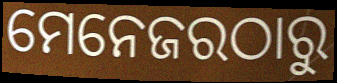
ମେନେଜରଠାରୁ